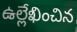
ఉల్లేఖించిన